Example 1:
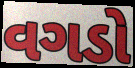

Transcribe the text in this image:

વગડો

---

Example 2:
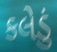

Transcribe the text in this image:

કલેડું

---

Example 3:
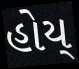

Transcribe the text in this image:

હોય્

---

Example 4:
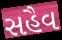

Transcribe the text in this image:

સહૈવ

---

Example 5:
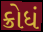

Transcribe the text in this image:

ક્રોધં